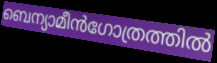
ബെന്യാമീൻഗോത്രത്തിൽ